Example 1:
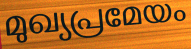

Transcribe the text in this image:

മുഖ്യപ്രമേയം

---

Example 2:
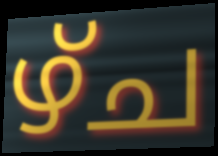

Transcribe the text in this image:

ഴ്ച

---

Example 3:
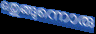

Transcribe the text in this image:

ഒതുങ്ങുന്നൊരു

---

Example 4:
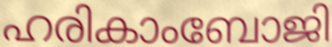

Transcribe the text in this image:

ഹരികാംബോജി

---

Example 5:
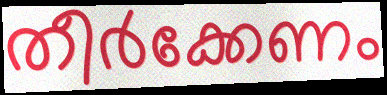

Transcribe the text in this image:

തീർക്കേണം